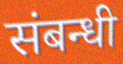
संबन्धी